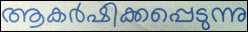
ആകർഷിക്കപ്പെടുന്നു